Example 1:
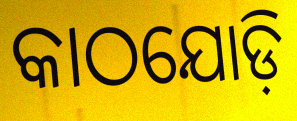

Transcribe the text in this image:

କାଠଯୋଡ଼ି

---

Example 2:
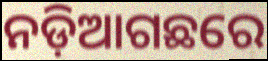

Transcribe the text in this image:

ନଡ଼ିଆଗଛରେ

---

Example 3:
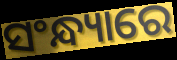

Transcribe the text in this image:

ସଂନ୍ଧ୍ୟାରେ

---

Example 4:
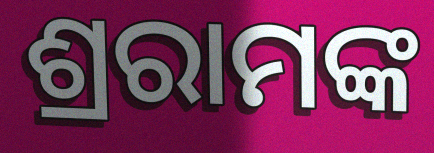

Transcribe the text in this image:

ଶ୍ରରାମଙ୍କ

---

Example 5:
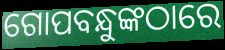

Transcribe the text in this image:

ଗୋପବନ୍ଧୁଙ୍କଠାରେ